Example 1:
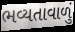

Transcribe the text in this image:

ભવ્યતાવાળું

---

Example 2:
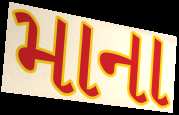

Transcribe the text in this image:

માના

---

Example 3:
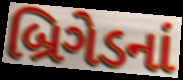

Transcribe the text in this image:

બ્રિગેડનાં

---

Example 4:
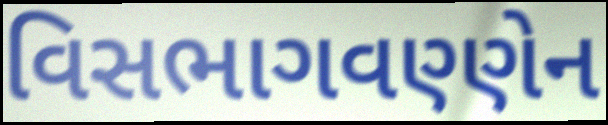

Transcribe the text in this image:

વિસભાગવણ્ણેન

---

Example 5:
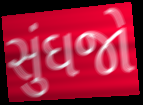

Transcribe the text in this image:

સુંઘજો